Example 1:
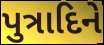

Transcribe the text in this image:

પુત્રાદિને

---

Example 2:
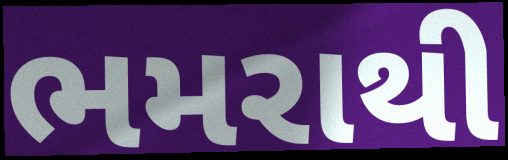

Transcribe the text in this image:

ભમરાથી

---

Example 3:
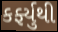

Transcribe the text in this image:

કર્ફ્યુથી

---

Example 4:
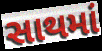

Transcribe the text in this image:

સાથમાં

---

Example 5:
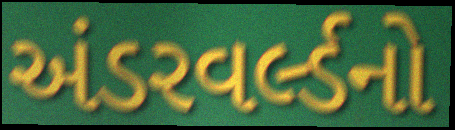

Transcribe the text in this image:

અંડરવર્લ્ડનો